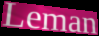
Leman